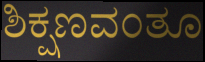
ಶಿಕ್ಷಣವಂತೂ